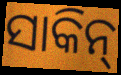
ସାକିନ୍